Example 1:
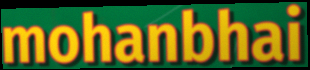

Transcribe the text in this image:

mohanbhai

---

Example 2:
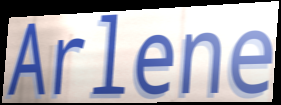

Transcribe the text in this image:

Arlene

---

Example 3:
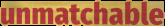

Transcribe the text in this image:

unmatchable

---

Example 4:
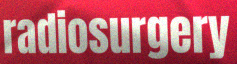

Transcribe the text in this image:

radiosurgery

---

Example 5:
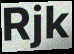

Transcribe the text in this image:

Rjk